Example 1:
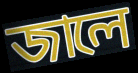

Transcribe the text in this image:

জালে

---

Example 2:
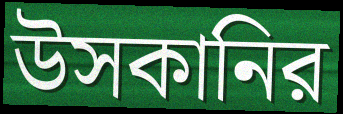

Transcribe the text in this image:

উসকানির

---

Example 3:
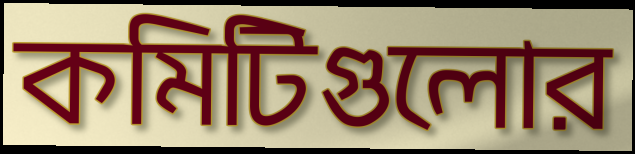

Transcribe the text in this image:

কমিটিগুলোর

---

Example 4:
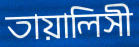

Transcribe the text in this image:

তায়ালিসী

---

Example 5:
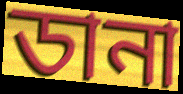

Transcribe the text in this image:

ডানা